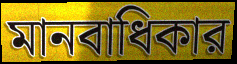
মানবাধিকার